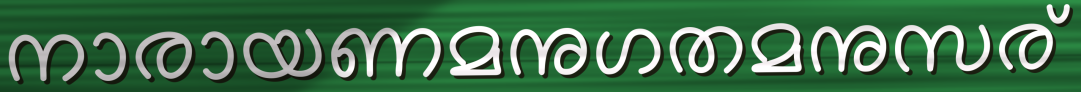
നാരായണമനുഗതമനുസര്